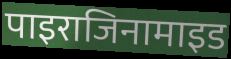
पाइराजिनामाइड